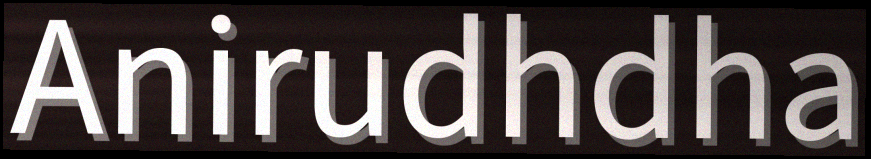
Anirudhdha